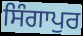
ਸਿੰਗਾਪੁਰ